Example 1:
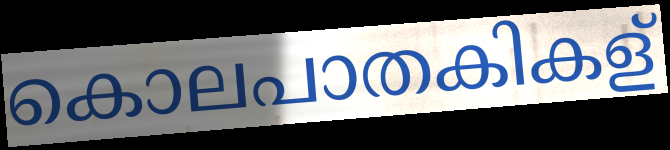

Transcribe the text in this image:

കൊലപാതകികള്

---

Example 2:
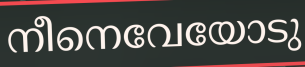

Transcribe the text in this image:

നീനെവേയോടു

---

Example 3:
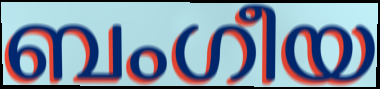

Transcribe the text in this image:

ബംഗീയ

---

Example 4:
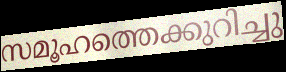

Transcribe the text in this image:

സമൂഹത്തെക്കുറിച്ചു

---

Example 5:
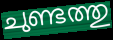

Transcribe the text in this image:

ചുണ്ടത്തു